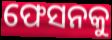
ଫେସନକୁ